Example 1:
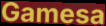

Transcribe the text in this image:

Gamesa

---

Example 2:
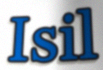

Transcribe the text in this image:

Isil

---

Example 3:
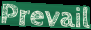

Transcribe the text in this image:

Prevail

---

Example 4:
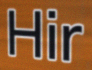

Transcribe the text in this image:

Hir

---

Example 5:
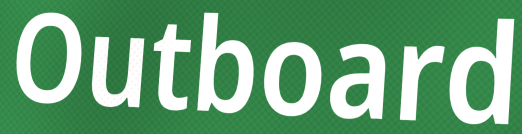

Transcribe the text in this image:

Outboard